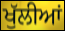
ਖੁੱਲੀਆਂ